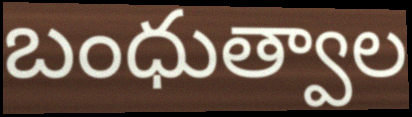
బంధుత్వాల